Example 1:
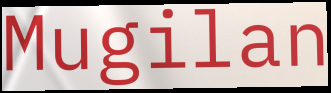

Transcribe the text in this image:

Mugilan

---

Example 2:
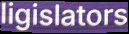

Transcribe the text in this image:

ligislators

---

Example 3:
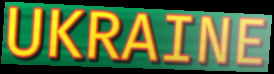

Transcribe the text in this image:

UKRAINE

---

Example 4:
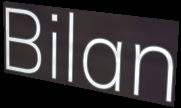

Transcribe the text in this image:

Bilan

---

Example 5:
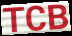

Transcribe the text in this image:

TCB